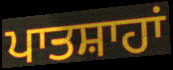
ਪਾਤਸ਼ਾਹਾਂ